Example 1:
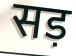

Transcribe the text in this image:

सड़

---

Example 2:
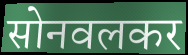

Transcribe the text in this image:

सोनवलकर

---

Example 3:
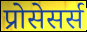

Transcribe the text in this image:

प्रोसेसर्स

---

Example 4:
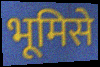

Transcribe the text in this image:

भूमिसे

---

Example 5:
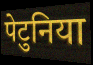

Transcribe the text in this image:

पेटुनिया